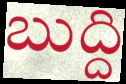
బుద్ది